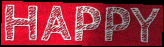
HAPPY